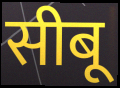
सीबू